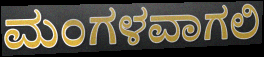
ಮಂಗಳವಾಗಲಿ